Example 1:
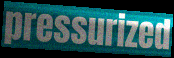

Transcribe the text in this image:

pressurized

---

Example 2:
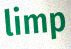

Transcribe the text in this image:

limp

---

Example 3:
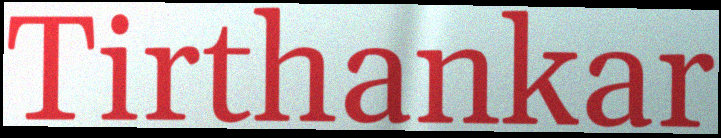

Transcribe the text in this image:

Tirthankar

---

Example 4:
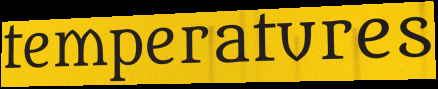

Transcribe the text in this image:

temperatures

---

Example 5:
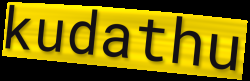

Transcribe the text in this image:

kudathu